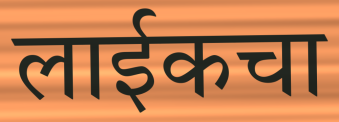
लाईकचा